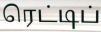
ரெட்டிப்